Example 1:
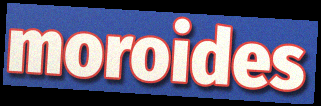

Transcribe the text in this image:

moroides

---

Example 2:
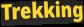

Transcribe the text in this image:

Trekking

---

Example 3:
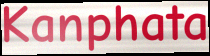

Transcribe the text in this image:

Kanphata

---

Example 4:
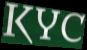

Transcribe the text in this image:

KYC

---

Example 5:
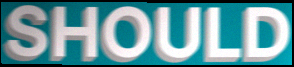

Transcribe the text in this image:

SHOULD